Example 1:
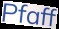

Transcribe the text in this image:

Pfaff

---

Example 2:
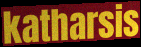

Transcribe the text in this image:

katharsis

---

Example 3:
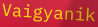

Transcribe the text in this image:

Vaigyanik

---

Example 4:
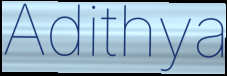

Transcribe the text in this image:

Adithya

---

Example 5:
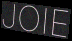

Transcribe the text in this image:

JOIE